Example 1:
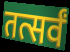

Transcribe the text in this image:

तत्सर्वं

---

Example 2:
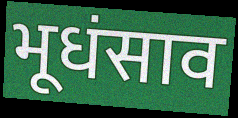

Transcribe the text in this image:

भूधंसाव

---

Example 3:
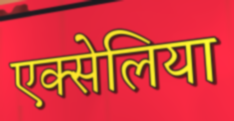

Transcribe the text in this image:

एक्सेलिया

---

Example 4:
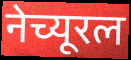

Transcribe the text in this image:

नेच्यूरल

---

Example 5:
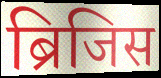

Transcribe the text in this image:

ब्रिजिस